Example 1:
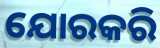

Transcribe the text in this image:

ଯୋରକରି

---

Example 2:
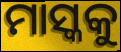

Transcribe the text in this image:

ମାସ୍କକୁ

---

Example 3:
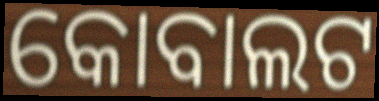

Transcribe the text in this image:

କୋବାଲଟ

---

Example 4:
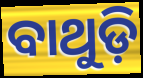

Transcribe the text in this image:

ବାଥୁଡ଼ି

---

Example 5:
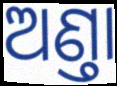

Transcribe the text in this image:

ଅଣ୍ତା